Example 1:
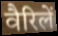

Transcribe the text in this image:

वैरिलें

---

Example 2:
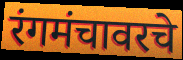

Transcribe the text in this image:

रंगमंचावरचे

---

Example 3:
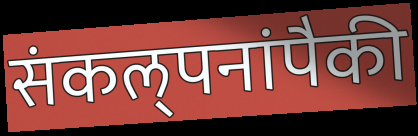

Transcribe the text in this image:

संकल्पनांपैकी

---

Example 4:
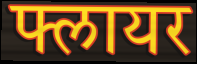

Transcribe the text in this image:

फ्लायर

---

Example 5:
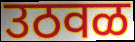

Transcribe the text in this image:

उठवळ